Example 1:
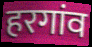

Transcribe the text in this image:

हरगांव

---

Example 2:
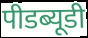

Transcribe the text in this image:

पीडब्यूडी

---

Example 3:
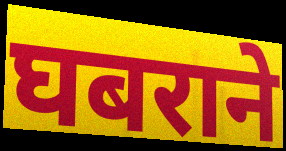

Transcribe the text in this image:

घबराने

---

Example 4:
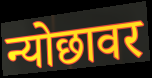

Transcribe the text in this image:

न्योछावर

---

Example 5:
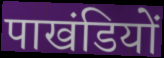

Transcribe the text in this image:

पाखंडियों